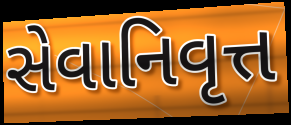
સેવાનિવૃત્ત